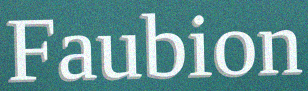
Faubion